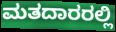
ಮತದಾರರಲ್ಲಿ